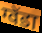
ग्वेंडा